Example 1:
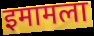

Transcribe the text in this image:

इमामला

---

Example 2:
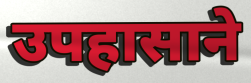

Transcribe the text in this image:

उपहासाने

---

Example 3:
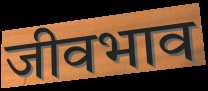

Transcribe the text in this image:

जीवभाव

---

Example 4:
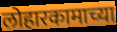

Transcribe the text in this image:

लोहारकामाच्या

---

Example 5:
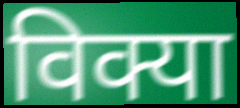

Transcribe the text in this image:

विक्या